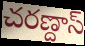
చరణ్దాస్